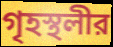
গৃহস্থলীর